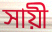
সায়ী